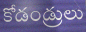
కోడండ్రులు